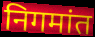
निगमांत